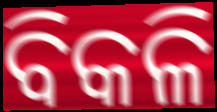
ବିକଳି